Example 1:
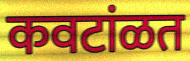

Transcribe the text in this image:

कवटांळत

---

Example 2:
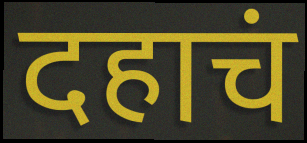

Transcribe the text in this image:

दहाचं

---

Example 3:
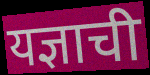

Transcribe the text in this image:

यज्ञाची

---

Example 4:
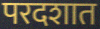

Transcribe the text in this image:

परदशात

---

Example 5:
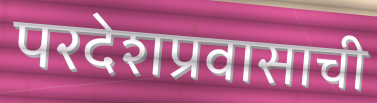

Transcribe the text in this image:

परदेशप्रवासाची